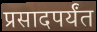
प्रसादपर्यंत